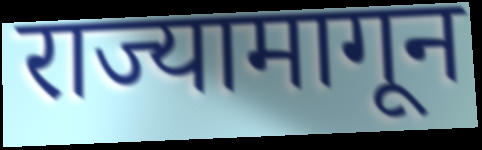
राज्यामागून